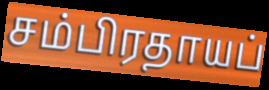
சம்பிரதாயப்